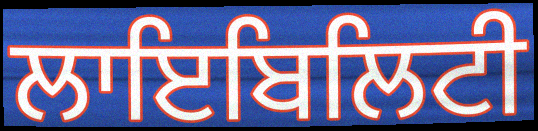
ਲਾਇਬਿਲਿਟੀ